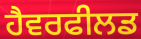
ਹੈਵਰਫੀਲਡ